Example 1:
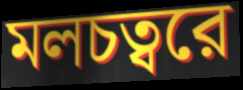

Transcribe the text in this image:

মলচত্বরে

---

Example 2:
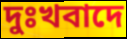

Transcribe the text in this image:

দুঃখবাদে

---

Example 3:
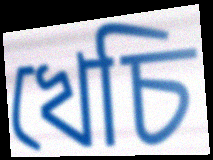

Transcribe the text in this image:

খেচি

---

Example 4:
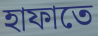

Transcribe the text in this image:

হাফাতে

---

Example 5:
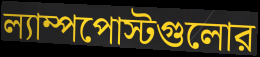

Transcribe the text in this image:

ল্যাম্পপোস্টগুলোর